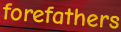
forefathers